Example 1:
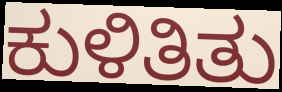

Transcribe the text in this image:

ಕುಳಿತಿತು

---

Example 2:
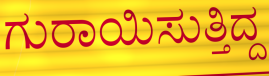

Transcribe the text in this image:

ಗುರಾಯಿಸುತ್ತಿದ್ದ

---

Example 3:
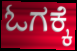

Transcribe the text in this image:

ಓಗಕ್ಕೆ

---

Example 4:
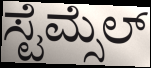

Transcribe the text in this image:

ಸ್ಟೆಮ್ಸೆಲ್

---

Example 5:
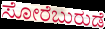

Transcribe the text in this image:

ಸೋರೆಬುರುಡೆ